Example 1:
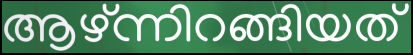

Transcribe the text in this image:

ആഴ്ന്നിറങ്ങിയത്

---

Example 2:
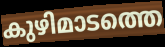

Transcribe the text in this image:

കുഴിമാടത്തെ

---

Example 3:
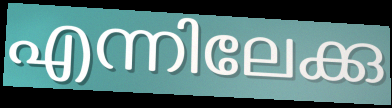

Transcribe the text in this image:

എന്നിലേക്കു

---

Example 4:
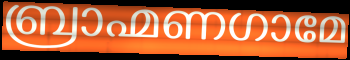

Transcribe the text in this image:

ബ്രാഹ്മണഗാമേ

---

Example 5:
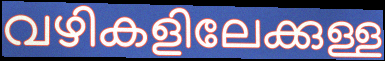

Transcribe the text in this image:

വഴികളിലേക്കുള്ള